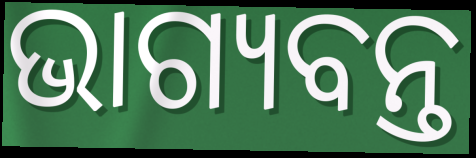
ଭାଗ୍ୟବନ୍ତ